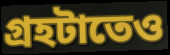
গ্রহটাতেও